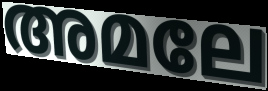
അമലേ